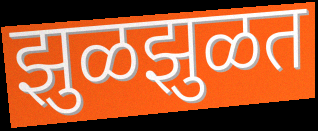
झुळझुळत